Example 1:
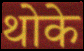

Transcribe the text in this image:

थोके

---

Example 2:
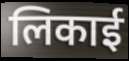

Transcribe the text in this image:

लिकाई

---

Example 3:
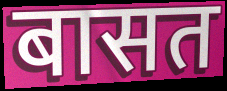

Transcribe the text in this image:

बासत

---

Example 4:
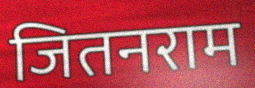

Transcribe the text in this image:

जितनराम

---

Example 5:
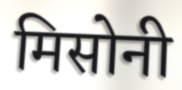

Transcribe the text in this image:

मिसोनी